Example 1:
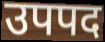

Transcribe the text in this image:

उपपद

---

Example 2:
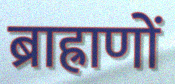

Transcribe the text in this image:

ब्राह्राणों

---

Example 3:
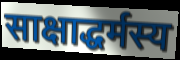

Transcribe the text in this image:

साक्षाद्धर्मस्य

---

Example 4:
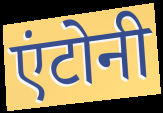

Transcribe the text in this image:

एंटोनी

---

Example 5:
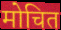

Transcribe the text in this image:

मोचित